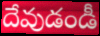
దేవుడండీ